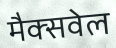
मैक्‍सवेल